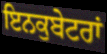
ਇਨਕੁਬੇਟਰਾਂ